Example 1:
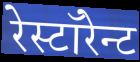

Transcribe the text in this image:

रेस्टॉरेन्ट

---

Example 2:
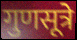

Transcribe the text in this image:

गुणसूत्रे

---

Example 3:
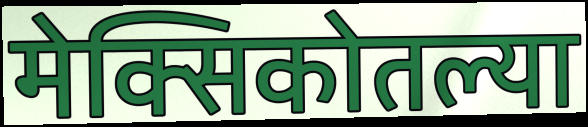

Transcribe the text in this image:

मेक्सिकोतल्या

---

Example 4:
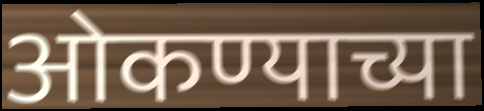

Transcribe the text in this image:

ओकण्याच्या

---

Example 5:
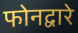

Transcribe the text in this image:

फोनद्वारे